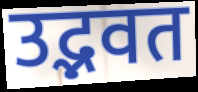
उद्भवत